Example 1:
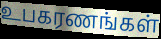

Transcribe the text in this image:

உபகரணங்கள்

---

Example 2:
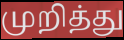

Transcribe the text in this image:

முறித்து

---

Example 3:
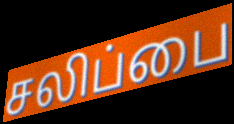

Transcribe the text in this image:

சலிப்பை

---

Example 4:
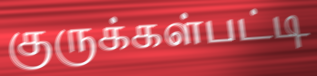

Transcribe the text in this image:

குருக்கள்பட்டி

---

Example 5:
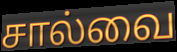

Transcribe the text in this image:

சால்வை